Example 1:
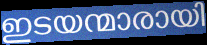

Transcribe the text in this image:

ഇടയന്മാരായി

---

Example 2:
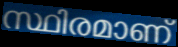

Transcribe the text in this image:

സ്ഥിരമാണ്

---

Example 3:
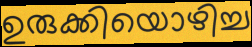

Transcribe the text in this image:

ഉരുക്കിയൊഴിച്ച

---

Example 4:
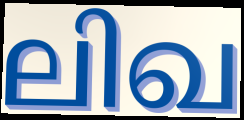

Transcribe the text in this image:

ലിഖ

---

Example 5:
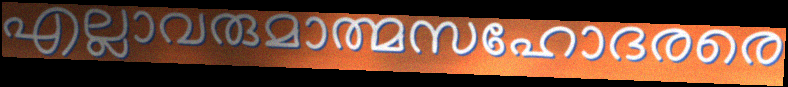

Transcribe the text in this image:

എല്ലാവരുമാത്മസഹോദരരെ